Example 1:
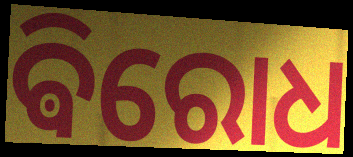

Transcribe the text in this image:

ଵିରୋଧ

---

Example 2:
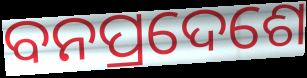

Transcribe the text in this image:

ବନପ୍ରଦେଶେ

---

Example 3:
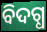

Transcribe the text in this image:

ବିଦଗ୍ଧ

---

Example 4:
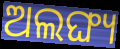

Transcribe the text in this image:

ଅଲଙ୍ଘ୍ୟ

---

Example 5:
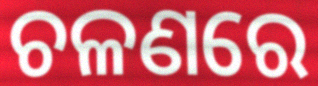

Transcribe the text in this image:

ଚଳଣରେ